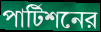
পার্টিশনের